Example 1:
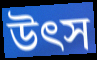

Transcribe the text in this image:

উত্‍স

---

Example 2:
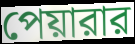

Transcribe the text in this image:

পেয়ারার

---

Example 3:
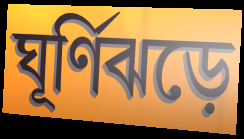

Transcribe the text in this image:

ঘূর্ণিঝড়ে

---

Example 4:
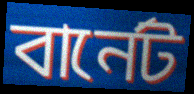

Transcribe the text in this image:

বার্নেট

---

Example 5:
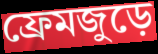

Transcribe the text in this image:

ফ্রেমজুড়ে